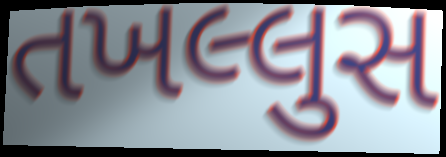
તખલ્લુસ